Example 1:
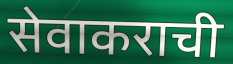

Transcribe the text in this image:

सेवाकराची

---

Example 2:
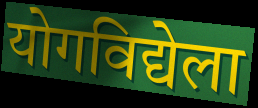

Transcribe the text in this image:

योगविद्येला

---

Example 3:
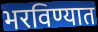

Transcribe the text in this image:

भरविण्यात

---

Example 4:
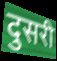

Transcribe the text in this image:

दुसरी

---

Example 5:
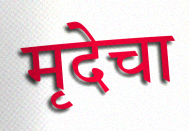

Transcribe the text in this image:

मृदेचा